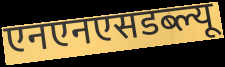
एनएनएसडब्ल्यू